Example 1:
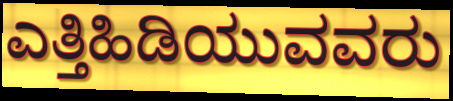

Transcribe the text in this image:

ಎತ್ತಿಹಿಡಿಯುವವರು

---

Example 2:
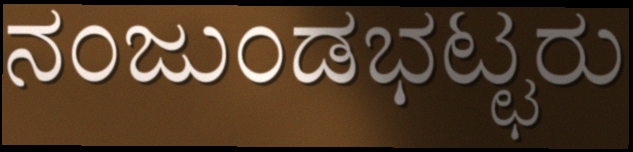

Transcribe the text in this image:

ನಂಜುಂಡಭಟ್ಟರು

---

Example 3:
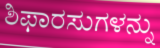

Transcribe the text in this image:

ಶಿಫಾರಸುಗಳನ್ನು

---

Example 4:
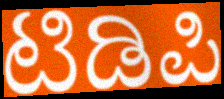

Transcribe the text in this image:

ಟಿಡಿಪಿ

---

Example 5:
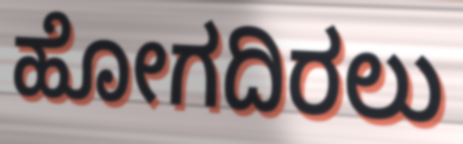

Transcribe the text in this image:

ಹೋಗದಿರಲು